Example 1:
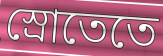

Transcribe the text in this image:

স্রোতেতে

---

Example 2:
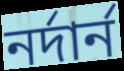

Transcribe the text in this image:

নর্দার্ন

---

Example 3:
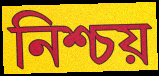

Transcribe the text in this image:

নিশ্চয়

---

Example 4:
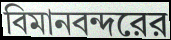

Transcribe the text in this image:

বিমানবন্দরের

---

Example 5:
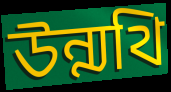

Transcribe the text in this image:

উন্মথি